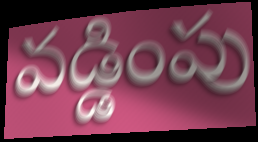
వడ్డింపు